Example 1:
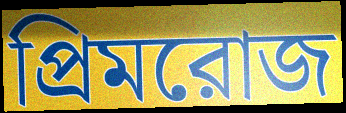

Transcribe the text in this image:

প্রিমরোজ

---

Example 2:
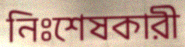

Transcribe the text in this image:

নিঃশেষকারী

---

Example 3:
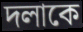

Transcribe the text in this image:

দলাকে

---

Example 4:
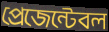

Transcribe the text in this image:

প্রেজেন্টেবল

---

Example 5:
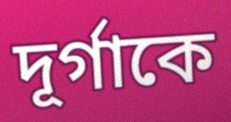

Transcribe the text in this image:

দূর্গাকে